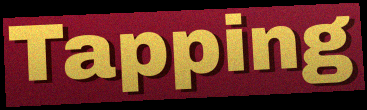
Tapping